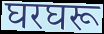
घरघरू